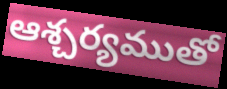
ఆశ్చర్యముతో